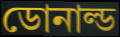
ডোনাল্ড